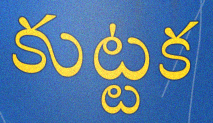
కుట్టక